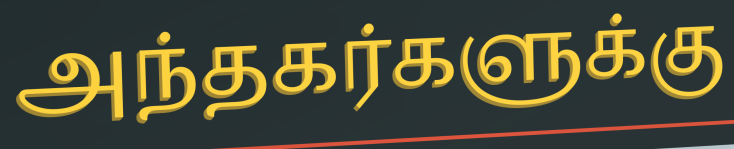
அந்தகர்களுக்கு